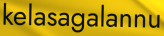
kelasagalannu